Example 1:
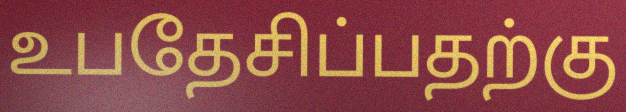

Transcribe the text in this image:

உபதேசிப்பதற்கு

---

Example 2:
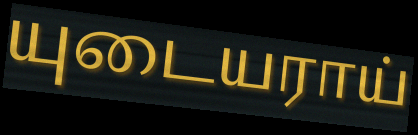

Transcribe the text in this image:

யுடையராய்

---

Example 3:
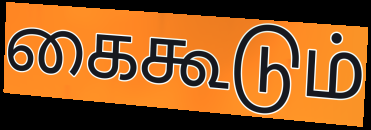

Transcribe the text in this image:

கைகூடும்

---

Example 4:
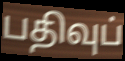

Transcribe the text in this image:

பதிவுப்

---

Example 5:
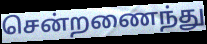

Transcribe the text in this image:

சென்றணைந்து